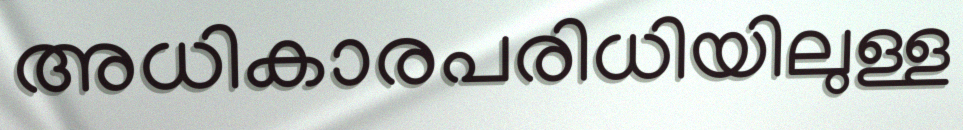
അധികാരപരിധിയിലുള്ള